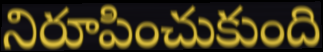
నిరూపించుకుంది